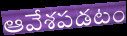
ఆవేశపడటం